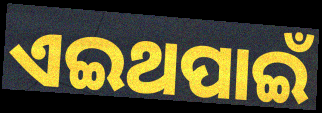
ଏଇଥପାଇଁ